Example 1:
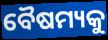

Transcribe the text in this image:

ବୈଷମ୍ୟକୁ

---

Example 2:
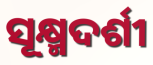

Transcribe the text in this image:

ସୂକ୍ଷ୍ମଦର୍ଶୀ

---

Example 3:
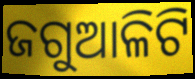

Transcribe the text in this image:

ଜଗୁଆଳିଟି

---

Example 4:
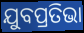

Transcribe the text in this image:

ଯୁବପ୍ରତିଭା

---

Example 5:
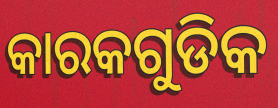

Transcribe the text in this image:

କାରକଗୁଡିକ